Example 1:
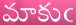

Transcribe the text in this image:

మాకుఁ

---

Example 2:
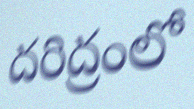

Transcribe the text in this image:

దరిద్రంలో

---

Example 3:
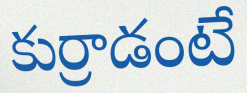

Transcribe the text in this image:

కుర్రాడంటే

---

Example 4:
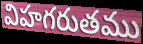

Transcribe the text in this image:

విహగరుతము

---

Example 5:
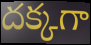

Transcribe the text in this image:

దక్కగా